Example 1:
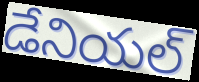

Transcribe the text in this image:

డేనియల్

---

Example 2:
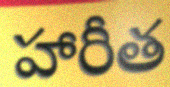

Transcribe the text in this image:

హారీత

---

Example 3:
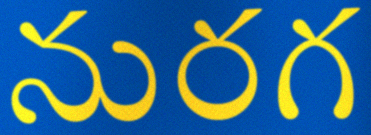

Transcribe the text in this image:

నురగ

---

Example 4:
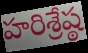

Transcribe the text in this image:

హరిశ్రేష్ఠ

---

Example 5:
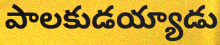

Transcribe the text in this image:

పాలకుడయ్యాడు